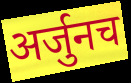
अर्जुनच